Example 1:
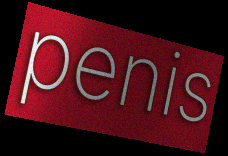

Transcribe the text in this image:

penis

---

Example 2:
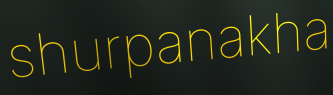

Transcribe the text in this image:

shurpanakha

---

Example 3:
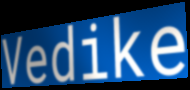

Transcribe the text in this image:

Vedike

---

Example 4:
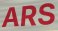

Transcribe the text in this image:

ARS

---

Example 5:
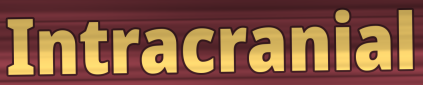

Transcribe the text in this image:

Intracranial